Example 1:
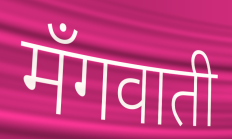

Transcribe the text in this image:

मँगवाती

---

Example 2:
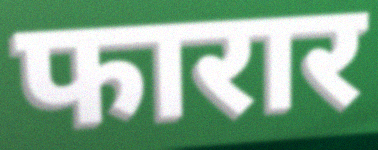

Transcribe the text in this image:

फारार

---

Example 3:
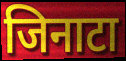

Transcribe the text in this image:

जिनाटा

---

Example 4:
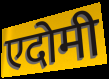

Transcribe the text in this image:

एदोमी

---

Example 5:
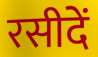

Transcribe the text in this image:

रसीदें